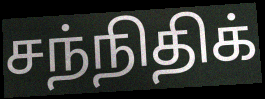
சந்நிதிக்